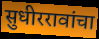
सुधीररावांचा